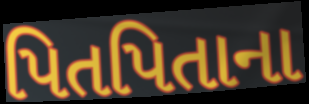
પિતપિતાના